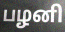
பழனி